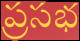
ప్రసభ